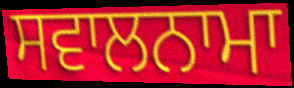
ਸਵਾਲਨਾਮਾ